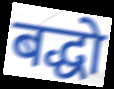
बद्धो